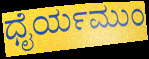
ಧೈರ್ಯಮುಂ